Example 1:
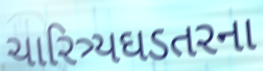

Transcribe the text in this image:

ચારિત્ર્યઘડતરના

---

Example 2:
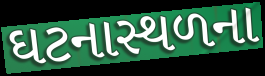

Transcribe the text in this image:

ઘટનાસ્થળના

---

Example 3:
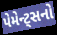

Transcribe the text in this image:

પેમેન્ટ્સનો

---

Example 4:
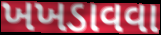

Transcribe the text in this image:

ખખડાવવા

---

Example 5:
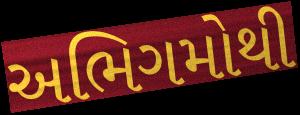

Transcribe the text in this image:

અભિગમોથી